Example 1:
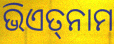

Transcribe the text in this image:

ଭିଏତ୍‌ନାମ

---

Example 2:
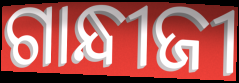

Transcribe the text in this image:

ଗାନ୍ଧୀଜୀ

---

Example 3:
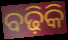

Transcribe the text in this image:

ବଢ଼ିକି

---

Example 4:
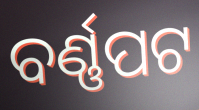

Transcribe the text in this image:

ବର୍ଣ୍ଣପଟ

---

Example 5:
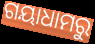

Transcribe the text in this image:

ଗୟାଧାମରୁ